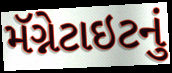
મૅગ્નેટાઇટનું